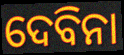
ଦେବିନା